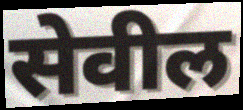
सेवील